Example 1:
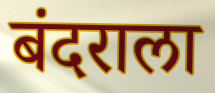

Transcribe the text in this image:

बंदराला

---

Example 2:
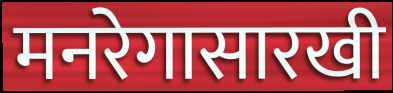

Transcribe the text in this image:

मनरेगासारखी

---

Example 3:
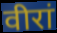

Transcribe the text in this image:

वीरां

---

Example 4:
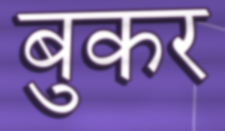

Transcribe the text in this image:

बुकर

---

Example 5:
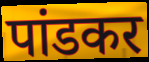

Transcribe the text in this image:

पांडकर